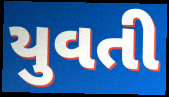
યુવતી